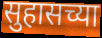
सुहासच्या